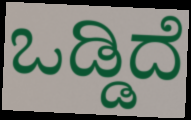
ಒಡ್ಡಿದೆ